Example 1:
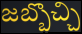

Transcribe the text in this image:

జబ్బొచ్చి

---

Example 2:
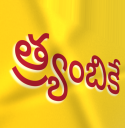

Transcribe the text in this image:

త్ర్యంబికే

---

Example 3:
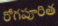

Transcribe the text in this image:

రోగపూరిత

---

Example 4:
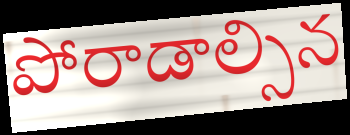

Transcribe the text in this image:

పోరాడాల్సిన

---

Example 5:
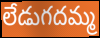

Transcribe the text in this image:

లేడుగదమ్మ